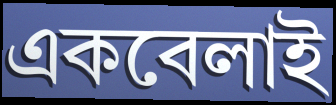
একবেলাই